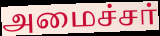
அமைச்சர்